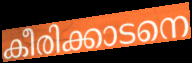
കീരിക്കാടനെ